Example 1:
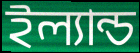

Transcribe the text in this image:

ইল্যান্ড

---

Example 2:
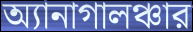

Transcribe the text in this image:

অ্যানাগালঞ্চার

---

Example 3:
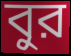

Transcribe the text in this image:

বুর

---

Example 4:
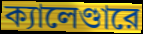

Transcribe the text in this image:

ক্যালেণ্ডারে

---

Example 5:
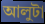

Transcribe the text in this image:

আলুটা